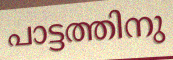
പാട്ടത്തിനു